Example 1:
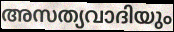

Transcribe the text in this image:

അസത്യവാദിയും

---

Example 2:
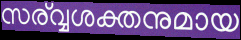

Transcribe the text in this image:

സര്വ്വശക്തനുമായ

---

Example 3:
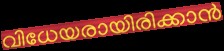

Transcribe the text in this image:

വിധേയരായിരിക്കാൻ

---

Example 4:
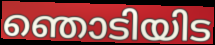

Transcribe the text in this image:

ഞൊടിയിട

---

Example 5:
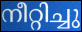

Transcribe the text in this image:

നീറ്റിച്ചു